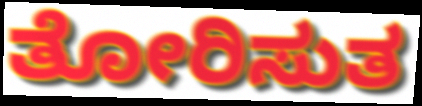
ತೋರಿಸುತ